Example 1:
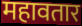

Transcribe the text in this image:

महावतार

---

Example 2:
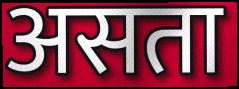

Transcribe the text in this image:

असता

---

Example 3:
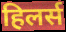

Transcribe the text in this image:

हिलर्स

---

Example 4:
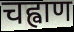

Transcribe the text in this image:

चह्वाण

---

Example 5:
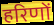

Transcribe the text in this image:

हरिणों